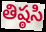
తిష్ఠసి